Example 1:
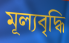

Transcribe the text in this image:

মূল্যবৃদ্ধি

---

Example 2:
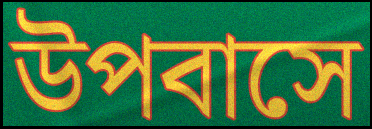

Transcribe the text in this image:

উপবাসে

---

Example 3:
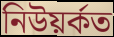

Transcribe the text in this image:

নিউয়ৰ্কত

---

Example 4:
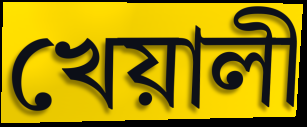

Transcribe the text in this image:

খেয়ালী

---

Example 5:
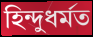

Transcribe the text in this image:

হিন্দুধৰ্মত